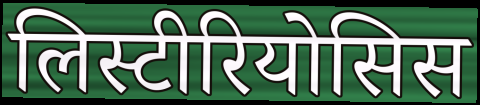
लिस्टीरियोसिस